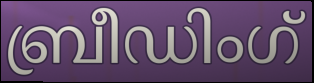
ബ്രീഡിംഗ്